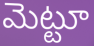
మెట్టూ